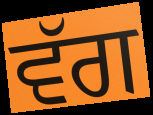
ਵੱਗ